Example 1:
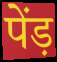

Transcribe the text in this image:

पेंड़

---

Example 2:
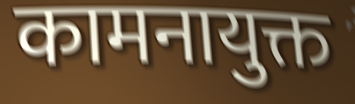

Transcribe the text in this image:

कामनायुक्त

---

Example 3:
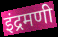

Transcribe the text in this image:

इंद्रमणी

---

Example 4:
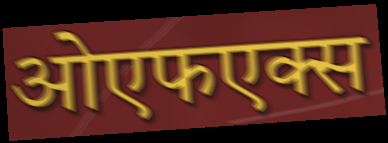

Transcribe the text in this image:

ओएफएक्स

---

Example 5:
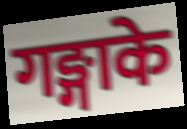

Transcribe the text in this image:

गङ्गाके